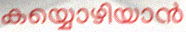
കയ്യൊഴിയാൻ